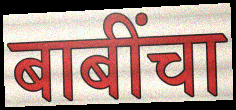
बाबींचा